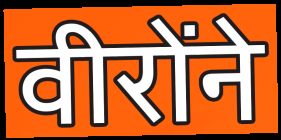
वीरोंने